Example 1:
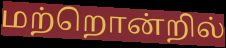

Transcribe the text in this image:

மற்றொன்றில்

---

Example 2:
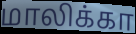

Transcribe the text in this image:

மாலிக்கா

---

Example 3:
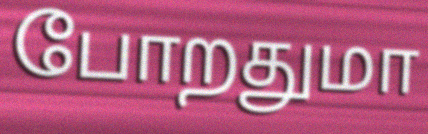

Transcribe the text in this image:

போறதுமா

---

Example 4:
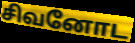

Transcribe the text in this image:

சிவனோட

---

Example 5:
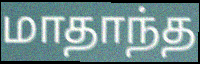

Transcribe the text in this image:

மாதாந்த